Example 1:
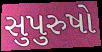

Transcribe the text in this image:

સુપુરુષો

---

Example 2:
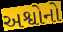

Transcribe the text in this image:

અશ્વોનો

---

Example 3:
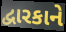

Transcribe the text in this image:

દ્વારકાને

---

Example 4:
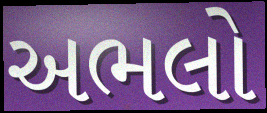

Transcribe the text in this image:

અભલો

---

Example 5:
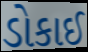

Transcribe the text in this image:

ડોકાઈ